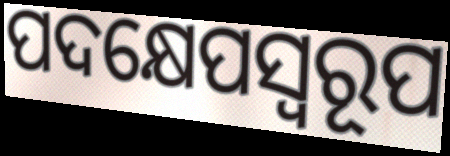
ପଦକ୍ଷେପସ୍ୱରୂପ